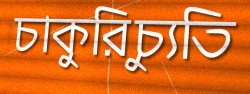
চাকুরিচ্যুতি